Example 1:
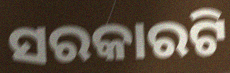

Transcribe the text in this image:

ସରକାରଟି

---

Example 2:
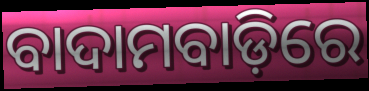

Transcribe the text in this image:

ବାଦାମବାଡ଼ିରେ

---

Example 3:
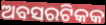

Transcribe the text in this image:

ଅବସରଟିକକ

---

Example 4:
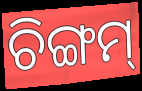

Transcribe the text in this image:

ଚିଙ୍ଗମ୍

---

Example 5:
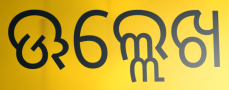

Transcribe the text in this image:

ଊଲ୍ଲେଖ